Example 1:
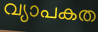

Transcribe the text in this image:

വ്യാപകത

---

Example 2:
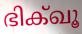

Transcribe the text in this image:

ഭിക്ഖൂ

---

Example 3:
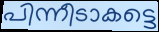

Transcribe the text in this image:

പിന്നീടാകട്ടെ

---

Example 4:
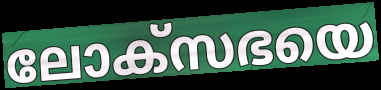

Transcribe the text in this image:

ലോക്സഭയെ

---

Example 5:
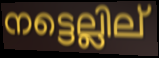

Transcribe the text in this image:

നട്ടെല്ലില്